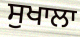
ਸੁਖਾਲਾ